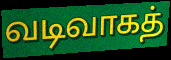
வடிவாகத்